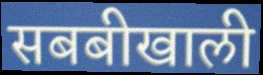
सबबीखाली